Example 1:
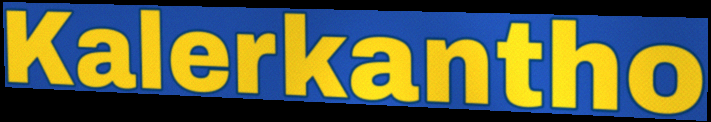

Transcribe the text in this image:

Kalerkantho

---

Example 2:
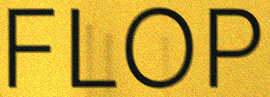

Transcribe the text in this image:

FLOP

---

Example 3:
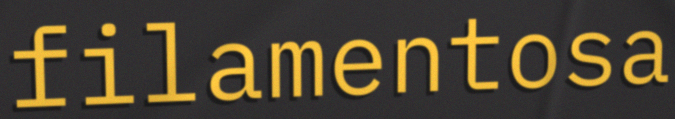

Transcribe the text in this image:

filamentosa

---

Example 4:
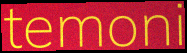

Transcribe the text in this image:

temoni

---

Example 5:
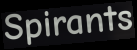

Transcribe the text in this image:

Spirants